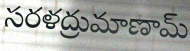
సరళద్రుమాణామ్